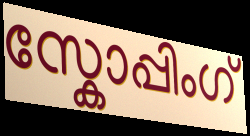
സ്കോപ്പിംഗ്